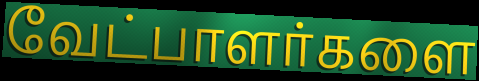
வேட்பாளர்களை